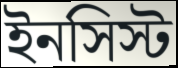
ইনসিস্ট